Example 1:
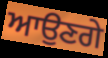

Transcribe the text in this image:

ਆਉਣਗੇ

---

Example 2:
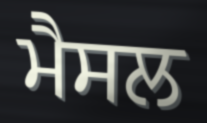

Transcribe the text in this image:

ਮੈਸਲ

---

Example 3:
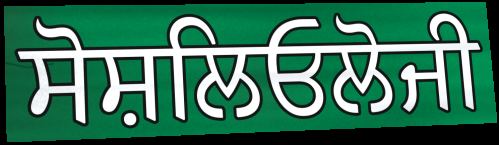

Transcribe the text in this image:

ਸੋਸ਼ਲਿਓਲੋਜੀ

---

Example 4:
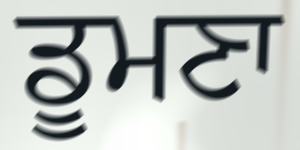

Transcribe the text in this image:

ਡੂਮਣਾ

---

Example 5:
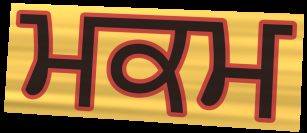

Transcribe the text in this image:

ਮਕਮ